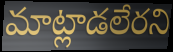
మాట్లాడలేరని